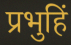
प्रभुहिं